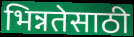
भिन्नतेसाठी